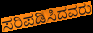
ಸರಿಪಡಿಸಿದವರು